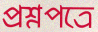
প্রশ্নপত্রে